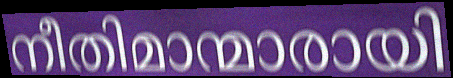
നീതിമാന്മാരായി